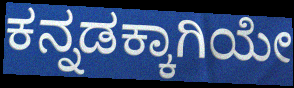
ಕನ್ನಡಕ್ಕಾಗಿಯೇ